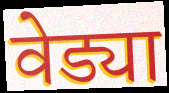
वेड्या